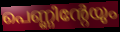
പെണ്ണിന്റേയും